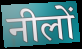
नीलों